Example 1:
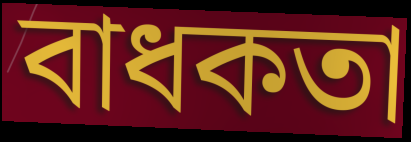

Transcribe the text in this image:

বাধকতা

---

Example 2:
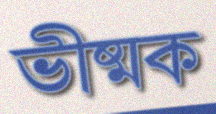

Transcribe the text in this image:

ভীষ্মক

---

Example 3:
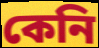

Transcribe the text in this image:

কেনি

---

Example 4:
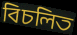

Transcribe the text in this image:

বিচলিত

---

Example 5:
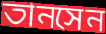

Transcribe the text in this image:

তানসেন